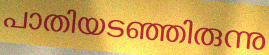
പാതിയടഞ്ഞിരുന്നു